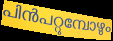
പിൻപറ്റുമ്പോഴും